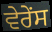
ਵੇਰੇਂਸ